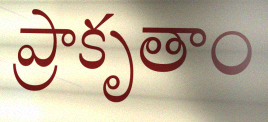
ప్రాకృతాం